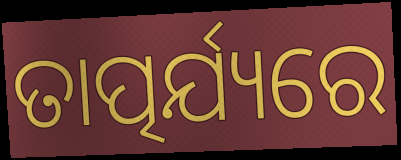
ତାତ୍ପର୍ଯ୍ୟରେ